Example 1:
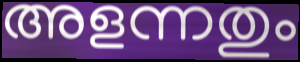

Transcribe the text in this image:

അളന്നതും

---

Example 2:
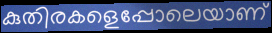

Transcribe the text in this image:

കുതിരകളെപ്പോലെയാണ്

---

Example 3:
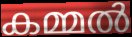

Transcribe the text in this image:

കമ്മൽ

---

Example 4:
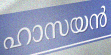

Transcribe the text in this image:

ഹാസയൻ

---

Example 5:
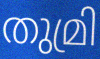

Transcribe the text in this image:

തുമ്രി